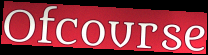
Ofcourse